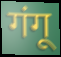
गंगू